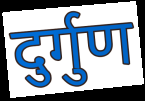
दुर्गुण